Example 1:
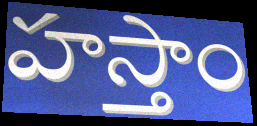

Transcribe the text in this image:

హస్తాం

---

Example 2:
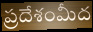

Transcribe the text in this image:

ప్రదేశంమీద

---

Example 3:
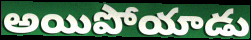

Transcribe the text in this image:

అయిపోయాడు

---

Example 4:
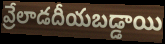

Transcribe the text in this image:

వ్రేలాడదీయబడ్డాయి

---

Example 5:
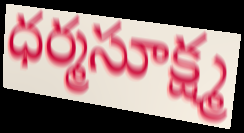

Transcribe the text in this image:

ధర్మసూక్ష్మ